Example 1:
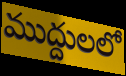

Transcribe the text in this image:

ముద్దులలో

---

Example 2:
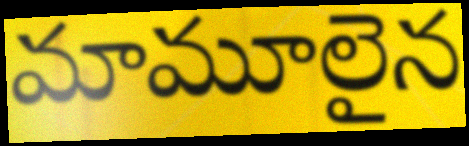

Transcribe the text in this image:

మామూలైన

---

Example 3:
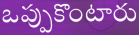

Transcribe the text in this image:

ఒప్పుకొంటారు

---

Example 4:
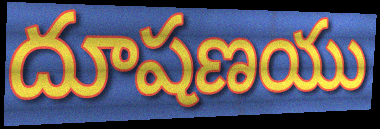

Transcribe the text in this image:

దూషణయు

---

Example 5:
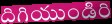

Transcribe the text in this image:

దిగియుండిరి